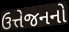
ઉત્તેજનનો